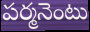
పర్మనెంటు